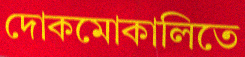
দোকমোকালিতে